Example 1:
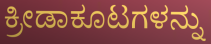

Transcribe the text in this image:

ಕ್ರೀಡಾಕೂಟಗಳನ್ನು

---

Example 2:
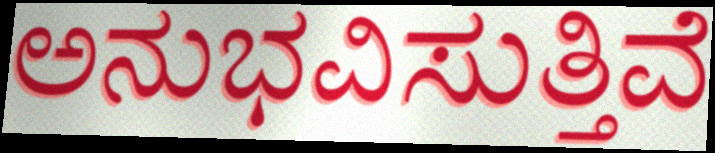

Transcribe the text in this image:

ಅನುಭವಿಸುತ್ತಿವೆ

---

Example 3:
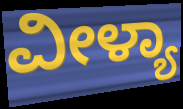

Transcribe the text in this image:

ವೀಳ್ಯಾ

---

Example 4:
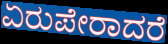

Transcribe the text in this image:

ಏರುಪೇರಾದರೆ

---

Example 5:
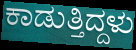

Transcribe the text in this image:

ಕಾಡುತ್ತಿದ್ದಳು